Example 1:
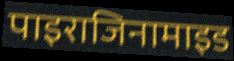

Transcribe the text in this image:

पाइराजिनामाइड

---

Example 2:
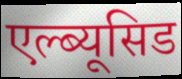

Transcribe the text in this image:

एल्ब्यूसिड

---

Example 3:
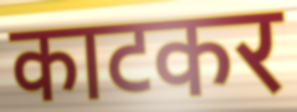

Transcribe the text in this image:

काटकर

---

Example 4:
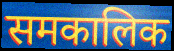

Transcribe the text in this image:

समकालिक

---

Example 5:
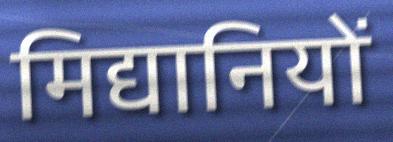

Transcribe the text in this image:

मिद्यानियों